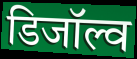
डिजॉल्व